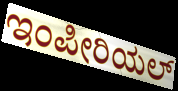
ಇಂಪೀರಿಯಲ್